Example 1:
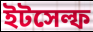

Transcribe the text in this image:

ইটসেল্ফ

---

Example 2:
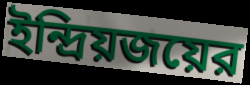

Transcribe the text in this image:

ইন্দ্রিয়জয়ের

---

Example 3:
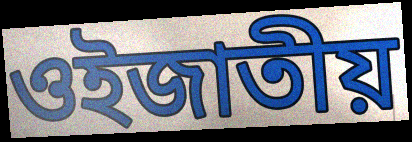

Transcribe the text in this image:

ওইজাতীয়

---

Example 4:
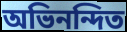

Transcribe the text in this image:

অভিনন্দিত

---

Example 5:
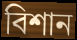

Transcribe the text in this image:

বিশান